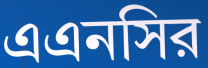
এএনসির